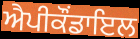
ਐਪੀਕੌਂਡਾਇਲ